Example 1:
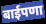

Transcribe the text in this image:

बाईपणा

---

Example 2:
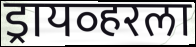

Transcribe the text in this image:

ड्रायव्हरला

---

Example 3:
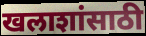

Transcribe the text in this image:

खलाशांसाठी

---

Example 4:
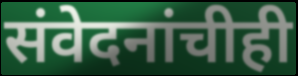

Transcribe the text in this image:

संवेदनांचीही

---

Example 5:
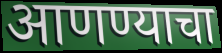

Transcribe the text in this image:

आणण्याचा